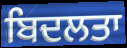
ਬਿਦਲਤਾ